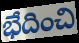
భేదించి